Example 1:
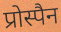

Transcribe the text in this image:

प्रोस्पैन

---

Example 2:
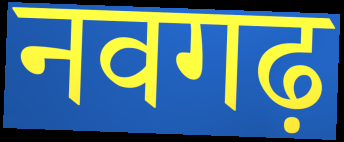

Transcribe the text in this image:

नवगढ़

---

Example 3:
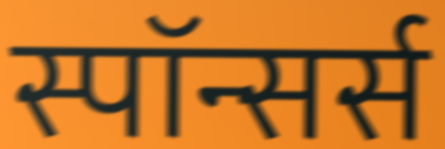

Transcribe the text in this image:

स्पॉन्सर्स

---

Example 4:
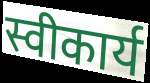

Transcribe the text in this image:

स्वीकार्य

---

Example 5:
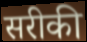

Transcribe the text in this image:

सरीकी